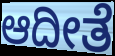
ಆದೀತೆ